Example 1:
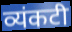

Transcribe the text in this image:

व्यंकटी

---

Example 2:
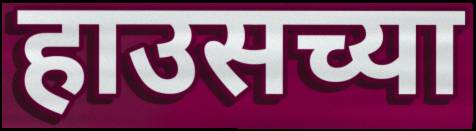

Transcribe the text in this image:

हाउसच्या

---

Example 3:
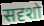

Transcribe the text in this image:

सदृशो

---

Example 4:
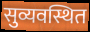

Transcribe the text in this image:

सुव्यवस्थित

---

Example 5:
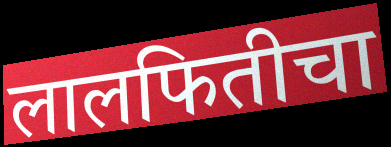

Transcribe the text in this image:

लालफितीचा